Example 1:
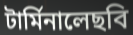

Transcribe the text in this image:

টার্মিনালেছবি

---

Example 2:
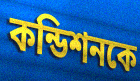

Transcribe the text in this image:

কন্ডিশনকে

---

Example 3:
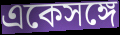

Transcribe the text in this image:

একেসঙ্গে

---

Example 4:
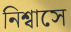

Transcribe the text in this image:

নিশ্বাসে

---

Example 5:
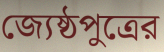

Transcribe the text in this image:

জ্যেষ্ঠপুত্রের